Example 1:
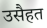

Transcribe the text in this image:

उसैहत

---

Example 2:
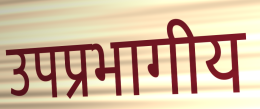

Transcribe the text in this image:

उपप्रभागीय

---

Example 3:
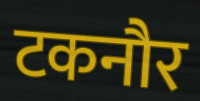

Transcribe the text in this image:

टकनौर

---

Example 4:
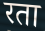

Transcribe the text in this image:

रता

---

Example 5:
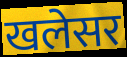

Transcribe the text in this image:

खलेसर